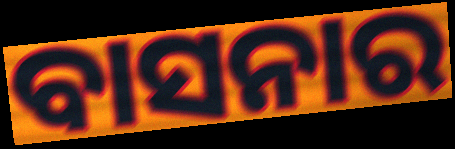
ବାସନାର